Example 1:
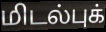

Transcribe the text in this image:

மிடல்புக்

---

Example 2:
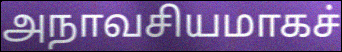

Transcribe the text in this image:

அநாவசியமாகச்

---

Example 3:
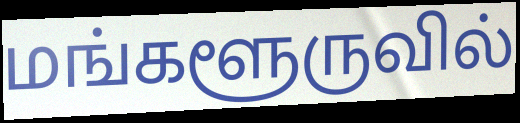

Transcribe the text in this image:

மங்களூருவில்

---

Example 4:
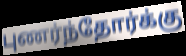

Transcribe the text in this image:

புணர்ந்தோர்க்கு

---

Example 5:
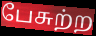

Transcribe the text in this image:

பேசுற்ற